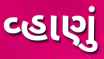
વ્હાણું